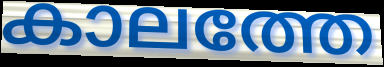
കാലത്തേ